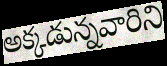
అక్కడున్నవారిని